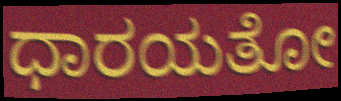
ಧಾರಯತೋ